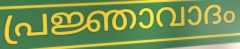
പ്രജ്ഞാവാദം